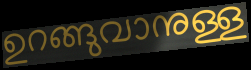
ഉറങ്ങുവാനുള്ള